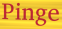
Pinge